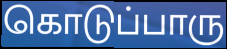
கொடுப்பாரு